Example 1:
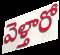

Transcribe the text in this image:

వెళ్తారో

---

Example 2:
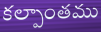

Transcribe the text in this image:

కల్పాంతము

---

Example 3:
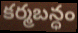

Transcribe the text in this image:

కర్మబన్ధం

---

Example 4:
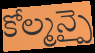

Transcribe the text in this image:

కోల్మన్పై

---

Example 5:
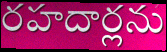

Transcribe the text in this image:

రహదార్లను